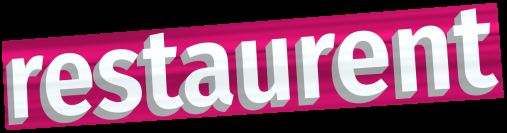
restaurent